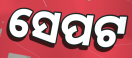
ସେପଟ